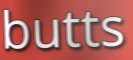
butts